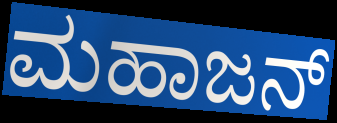
ಮಹಾಜನ್